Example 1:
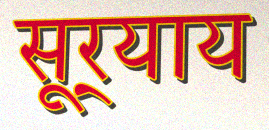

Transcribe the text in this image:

सूर्याय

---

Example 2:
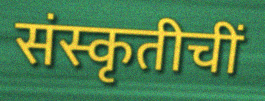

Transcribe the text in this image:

संस्कृतीचीं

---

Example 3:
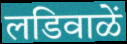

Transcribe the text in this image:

लडिवाळें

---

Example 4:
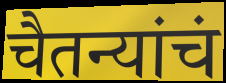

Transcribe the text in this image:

चैतन्यांचं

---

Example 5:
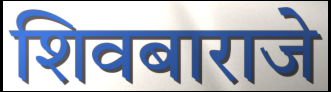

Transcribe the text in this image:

शिवबाराजे